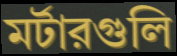
মর্টারগুলি